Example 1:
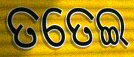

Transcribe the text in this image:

ତତେଇ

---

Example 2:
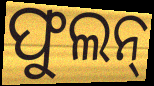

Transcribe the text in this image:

ଫୁଲନ୍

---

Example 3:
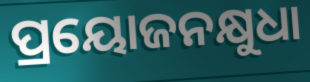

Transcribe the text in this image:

ପ୍ରୟୋଜନକ୍ଷୁଧା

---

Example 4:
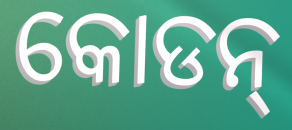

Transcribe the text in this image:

କୋଡନ୍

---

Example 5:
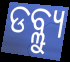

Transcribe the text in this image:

ଡବ୍ଲ୍ୟୁ